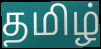
தமிழ்